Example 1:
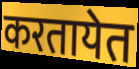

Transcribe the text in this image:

करतायेत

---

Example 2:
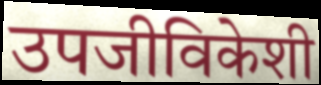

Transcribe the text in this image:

उपजीविकेशी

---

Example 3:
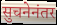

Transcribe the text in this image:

सुचनेनंतर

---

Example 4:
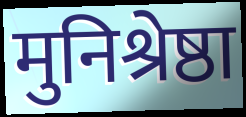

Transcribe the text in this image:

मुनिश्रेष्ठा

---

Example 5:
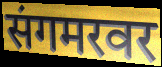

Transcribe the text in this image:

संगमरवर